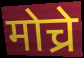
मोच्रे